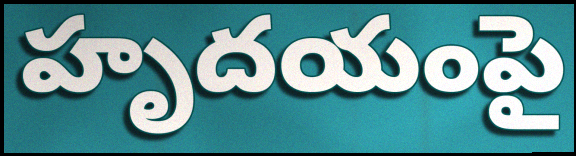
హృదయంపై